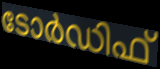
ടോർഡിഫ്